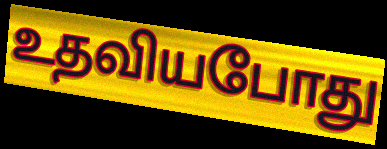
உதவியபோது